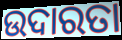
ଉଦାରତା